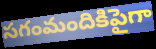
సగంమందికిపైగా